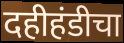
दहीहंडीचा